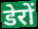
डेरों